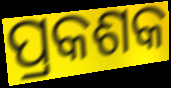
ପ୍ରକଶକ